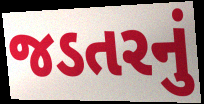
જડતરનું